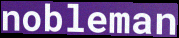
nobleman